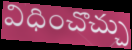
విధించొచ్చు